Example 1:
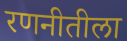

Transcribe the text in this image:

रणनीतीला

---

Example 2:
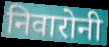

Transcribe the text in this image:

निवारोनी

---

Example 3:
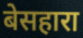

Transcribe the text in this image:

बेसहारा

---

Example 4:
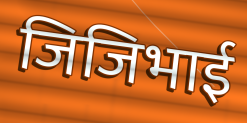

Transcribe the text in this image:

जिजिभाई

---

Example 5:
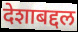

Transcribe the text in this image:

देशाबद्दल